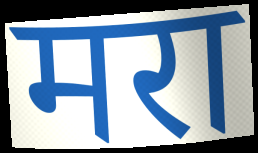
मरा